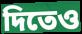
দিতেও